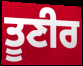
ਤੂਣੀਰ